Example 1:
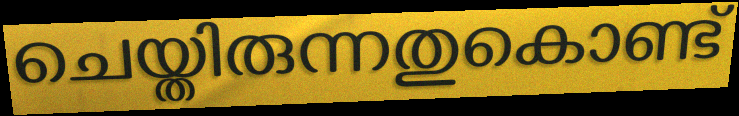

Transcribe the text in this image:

ചെയ്തിരുന്നതുകൊണ്ട്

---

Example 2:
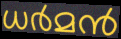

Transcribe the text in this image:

ധർമൻ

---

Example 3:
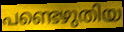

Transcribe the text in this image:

പണ്ടെഴുതിയ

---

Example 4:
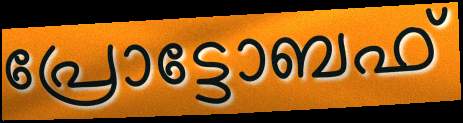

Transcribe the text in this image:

പ്രോട്ടോബഫ്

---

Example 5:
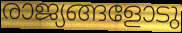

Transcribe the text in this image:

രാജ്യങ്ങളോടു